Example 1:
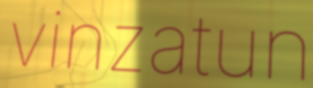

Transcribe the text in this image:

vinzatun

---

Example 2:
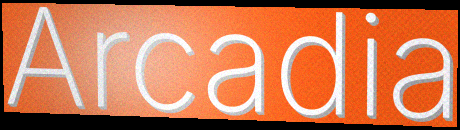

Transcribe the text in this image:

Arcadia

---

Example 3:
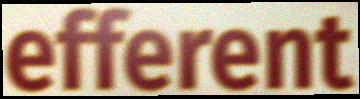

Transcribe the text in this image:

efferent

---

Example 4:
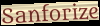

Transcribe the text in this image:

Sanforize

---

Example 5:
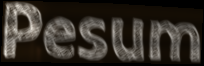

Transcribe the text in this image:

Pesum